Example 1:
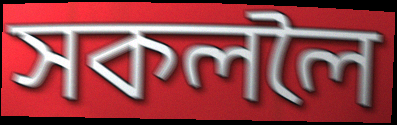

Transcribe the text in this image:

সকললৈ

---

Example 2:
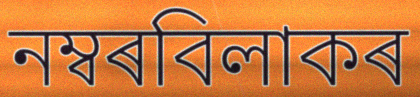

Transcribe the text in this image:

নম্বৰবিলাকৰ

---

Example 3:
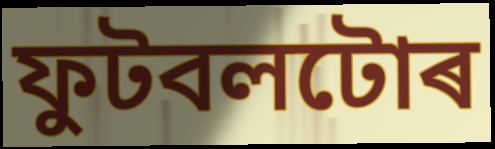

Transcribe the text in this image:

ফুটবলটোৰ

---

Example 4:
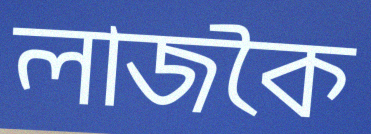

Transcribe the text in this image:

লাজকৈ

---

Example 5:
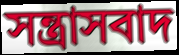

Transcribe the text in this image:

সন্ত্ৰাসবাদ